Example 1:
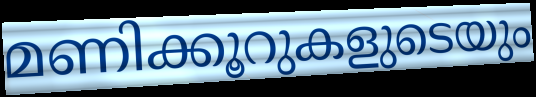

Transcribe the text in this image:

മണിക്കൂറുകളുടെയും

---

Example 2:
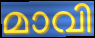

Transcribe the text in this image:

മാവി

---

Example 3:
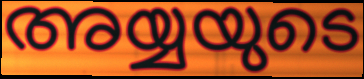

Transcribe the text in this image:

അയ്യയുടെ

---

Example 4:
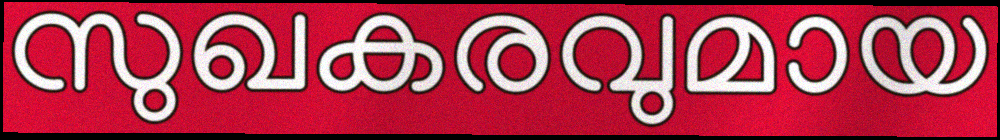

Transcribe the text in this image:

സുഖകരവുമായ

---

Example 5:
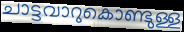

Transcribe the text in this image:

ചാട്ടവാറുകൊണ്ടുള്ള